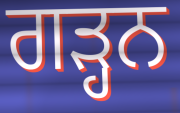
ਗੜ੍ਹਨ